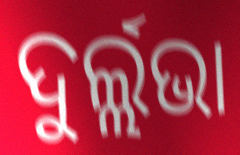
ଦୁର୍ଲ୍ଲଭା